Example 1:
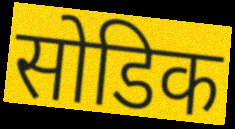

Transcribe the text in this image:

सोडिक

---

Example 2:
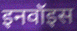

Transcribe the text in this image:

इनवॉइस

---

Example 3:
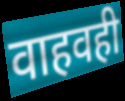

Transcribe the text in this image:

वाहवही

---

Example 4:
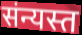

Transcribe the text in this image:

संन्यस्त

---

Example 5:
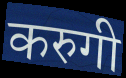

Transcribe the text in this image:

करुगी